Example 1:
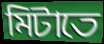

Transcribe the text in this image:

মিটাতে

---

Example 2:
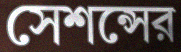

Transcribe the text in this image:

সেশন্সের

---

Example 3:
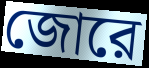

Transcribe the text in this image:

জোরে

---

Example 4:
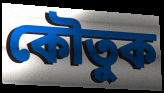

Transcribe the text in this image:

কৌতুক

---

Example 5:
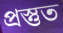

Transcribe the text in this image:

প্রস্তুত